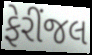
ફેરીંજલ